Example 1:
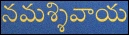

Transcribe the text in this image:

నమశ్శివాయ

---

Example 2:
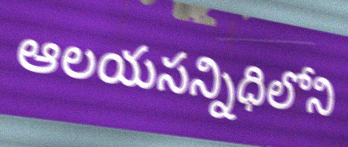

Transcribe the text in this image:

ఆలయసన్నిధిలోని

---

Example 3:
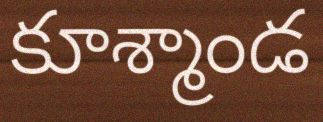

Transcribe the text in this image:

కూశ్మాండ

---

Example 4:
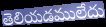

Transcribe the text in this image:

తెలియడములేదు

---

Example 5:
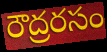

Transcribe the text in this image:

రౌద్రరసం